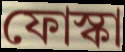
ফোস্কা